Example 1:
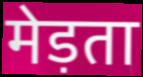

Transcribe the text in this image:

मेड़ता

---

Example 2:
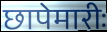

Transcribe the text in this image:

छापेमारीः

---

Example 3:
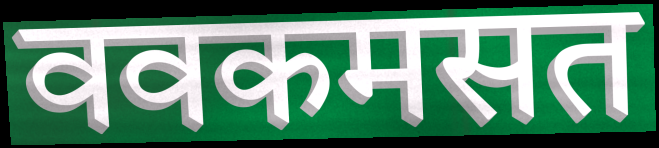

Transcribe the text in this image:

ववकमसत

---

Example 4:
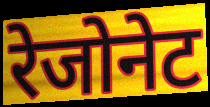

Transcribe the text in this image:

रेजोनेट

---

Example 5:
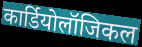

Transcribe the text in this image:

कार्डियोलॉजिकल